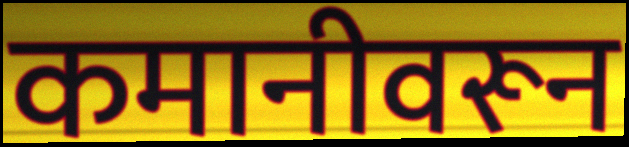
कमानीवरून